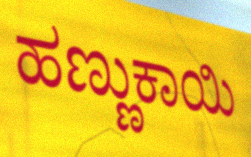
ಹಣ್ಣುಕಾಯಿ